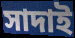
সাদাই